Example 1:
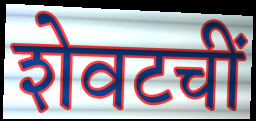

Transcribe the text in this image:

शेवटचीं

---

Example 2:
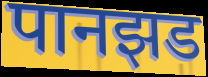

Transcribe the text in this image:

पानझड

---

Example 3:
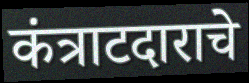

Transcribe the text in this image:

कंत्राटदाराचे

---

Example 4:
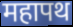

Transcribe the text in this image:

महापथ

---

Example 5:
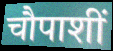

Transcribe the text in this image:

चौपाशीं